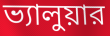
ভ্যালুয়ার